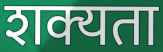
शक्‍यता